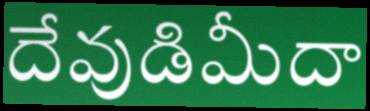
దేవుడిమీదా